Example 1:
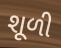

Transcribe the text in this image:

શૂળી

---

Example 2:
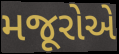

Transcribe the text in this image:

મજૂરોએ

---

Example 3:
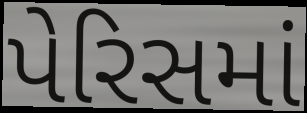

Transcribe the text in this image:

પેરિસમાં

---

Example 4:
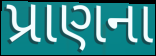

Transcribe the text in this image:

પ્રાણના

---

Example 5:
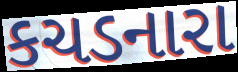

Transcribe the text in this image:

કચડનારા